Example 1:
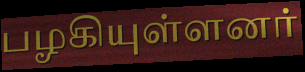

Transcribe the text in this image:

பழகியுள்ளனர்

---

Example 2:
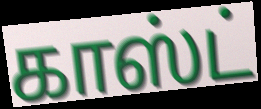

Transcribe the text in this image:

காஸ்ட்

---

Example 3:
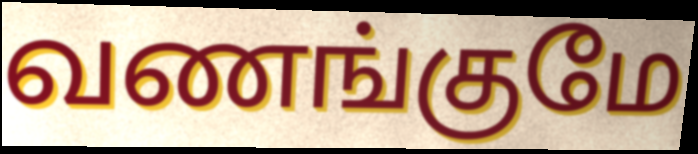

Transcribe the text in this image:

வணங்குமே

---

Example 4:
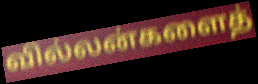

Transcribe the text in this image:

வில்லன்களைத்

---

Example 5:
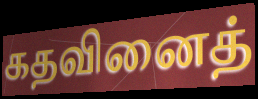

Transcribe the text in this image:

கதவினைத்